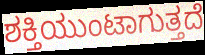
ಶಕ್ತಿಯುಂಟಾಗುತ್ತದೆ